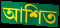
আশিত